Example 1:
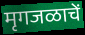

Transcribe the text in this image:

मृगजळाचें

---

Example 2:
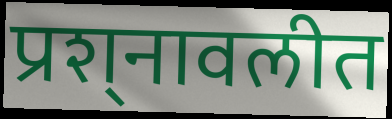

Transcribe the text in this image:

प्रश्नावलीत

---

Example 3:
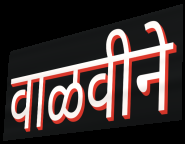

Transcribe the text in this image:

वाळवीने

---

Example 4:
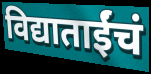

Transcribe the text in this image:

विद्याताईंचं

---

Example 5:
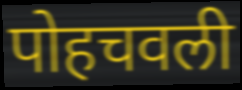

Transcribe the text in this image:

पोहचवली